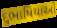
દુભાષિયાઓ